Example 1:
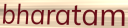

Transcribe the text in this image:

bharatam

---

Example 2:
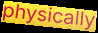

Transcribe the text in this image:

physically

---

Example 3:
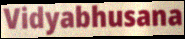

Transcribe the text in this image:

Vidyabhusana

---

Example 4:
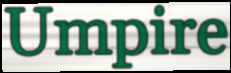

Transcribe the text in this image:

Umpire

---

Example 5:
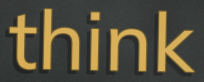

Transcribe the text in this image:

think